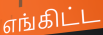
எங்கிட்ட